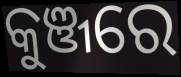
କୁଞ୍ଜରେ